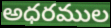
అధరముల